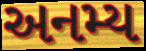
અનમ્ય